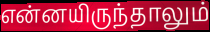
என்னயிருந்தாலும்